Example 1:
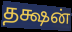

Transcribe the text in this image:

தக்ஷன்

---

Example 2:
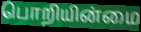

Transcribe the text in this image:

பொறியின்மை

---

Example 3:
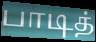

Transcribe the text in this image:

பாடித்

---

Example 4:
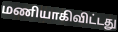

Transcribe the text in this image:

மணியாகிவிட்டது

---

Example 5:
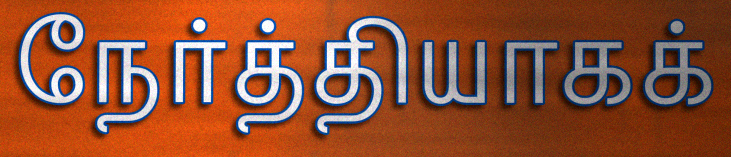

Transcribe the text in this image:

நேர்த்தியாகக்